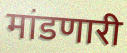
मांडणारी